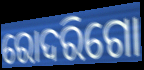
ରୋଦରିଗୋ